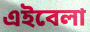
এইবেলা